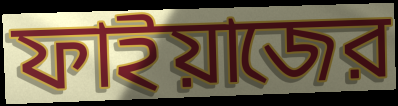
ফাইয়াজের